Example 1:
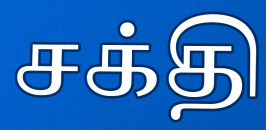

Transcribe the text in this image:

சக்தி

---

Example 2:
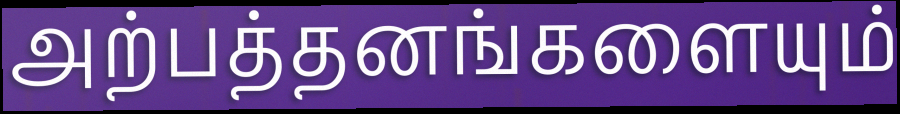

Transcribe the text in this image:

அற்பத்தனங்களையும்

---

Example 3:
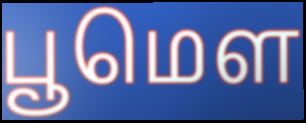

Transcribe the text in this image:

பூமௌ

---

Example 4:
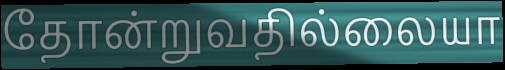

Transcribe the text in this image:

தோன்றுவதில்லையா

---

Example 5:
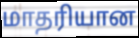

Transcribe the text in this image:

மாதரியான